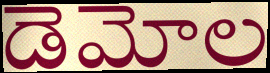
డెమోల